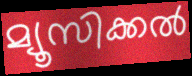
മ്യൂസിക്കൽ